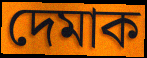
দেমাক